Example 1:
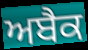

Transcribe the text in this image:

ਅਬੈਕ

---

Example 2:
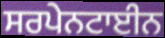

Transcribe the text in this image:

ਸਰਪੇਨਟਾਈਨ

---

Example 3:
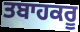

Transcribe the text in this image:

ਤਬਾਹਕਰੂ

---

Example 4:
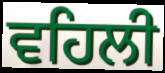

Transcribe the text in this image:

ਵਹਿਲੀ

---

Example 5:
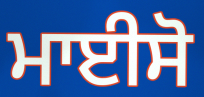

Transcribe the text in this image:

ਮਾਈਸੋ